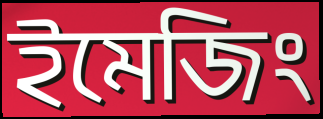
ইমেজিং